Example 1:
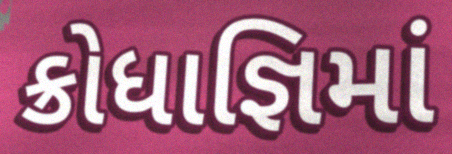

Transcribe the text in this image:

ક્રોધાજ્ઞિમાં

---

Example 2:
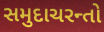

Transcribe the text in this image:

સમુદાચરન્તો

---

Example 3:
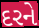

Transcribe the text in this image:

દરને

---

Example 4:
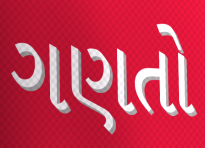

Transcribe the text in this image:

ગણતો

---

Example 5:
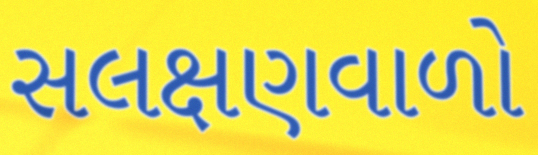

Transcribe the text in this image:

સલક્ષણવાળો